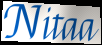
Nitaa